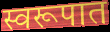
स्वरूपात